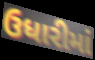
ઉધારીમાં